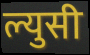
ल्युसी